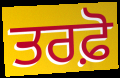
ਤਰਫ਼ੋ